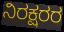
ನಿರಕ್ಷರರ